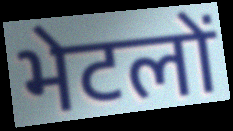
भेटलों